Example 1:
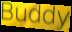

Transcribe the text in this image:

Buddy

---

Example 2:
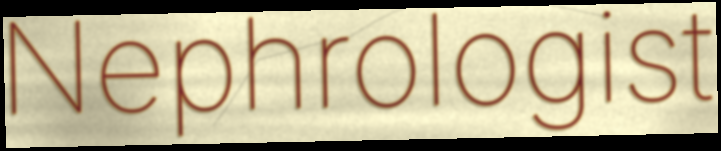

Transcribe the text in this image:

Nephrologist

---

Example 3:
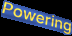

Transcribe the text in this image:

Powering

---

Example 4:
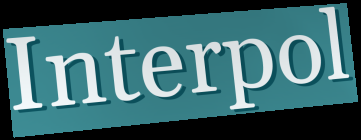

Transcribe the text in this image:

Interpol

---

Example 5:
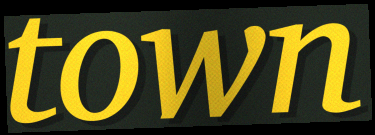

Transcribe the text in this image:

town